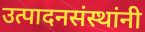
उत्पादनसंस्थांनी